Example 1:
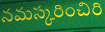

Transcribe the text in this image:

నమస్కరించిరి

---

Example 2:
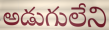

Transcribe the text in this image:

అడుగులేని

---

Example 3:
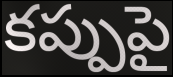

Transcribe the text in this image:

కప్పుపై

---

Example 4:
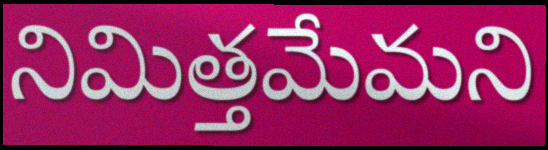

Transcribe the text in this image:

నిమిత్తమేమని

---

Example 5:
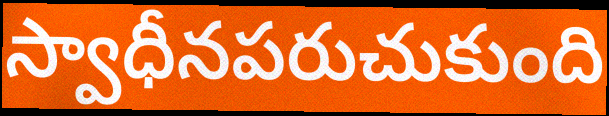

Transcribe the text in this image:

స్వాధీనపరుచుకుంది